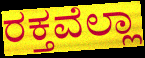
ರಕ್ತವೆಲ್ಲಾ